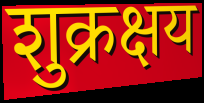
शुक्रक्षय